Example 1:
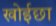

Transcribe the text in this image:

खोईछा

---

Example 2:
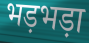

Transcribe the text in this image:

भड़भड़ा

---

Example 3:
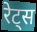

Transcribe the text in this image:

रेट्स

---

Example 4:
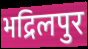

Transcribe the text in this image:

भद्रिलपुर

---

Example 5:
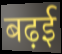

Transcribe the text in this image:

बढ़ई